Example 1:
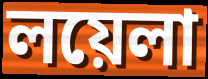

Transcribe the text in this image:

লয়েলা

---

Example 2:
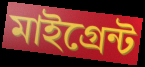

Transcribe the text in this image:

মাইগ্রেন্ট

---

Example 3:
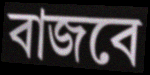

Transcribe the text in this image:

বাজবে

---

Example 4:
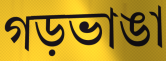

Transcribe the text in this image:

গড়ভাঙা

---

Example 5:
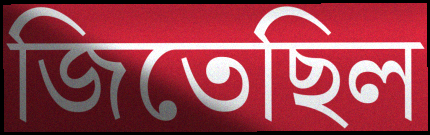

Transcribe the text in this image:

জিতেছিল